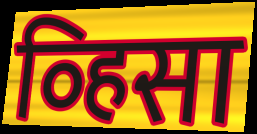
व्हिसा